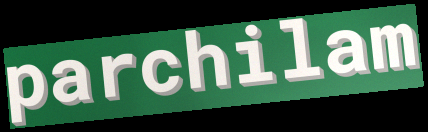
parchilam